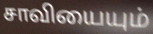
சாவியையும்